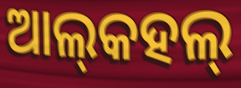
ଆଲ୍‌କହଲ୍